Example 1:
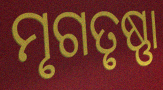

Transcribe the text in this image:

ମୃଗତୃଷ୍ଣା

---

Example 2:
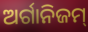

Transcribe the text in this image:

ଅର୍ଗାନିଜମ୍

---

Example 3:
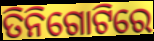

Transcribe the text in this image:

ତିନିଗୋଟିରେ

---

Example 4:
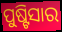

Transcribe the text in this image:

ପୁଷ୍ଟିସାର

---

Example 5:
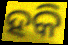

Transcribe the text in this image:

ହକି